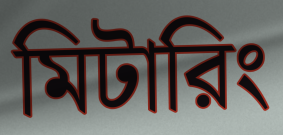
মিটারিং